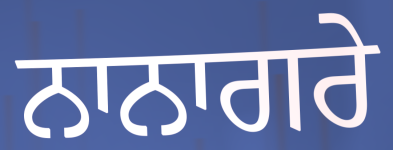
ਨਾਨਾਗਰੇ